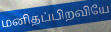
மனிதப்பிறவியே